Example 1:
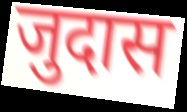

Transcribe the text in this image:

जुदास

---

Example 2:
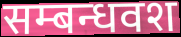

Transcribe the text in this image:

सम्बन्धवश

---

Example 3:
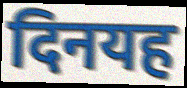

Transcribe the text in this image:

दिनयह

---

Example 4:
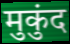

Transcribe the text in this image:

मुकुंद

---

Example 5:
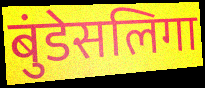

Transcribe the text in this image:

बुंडेसलिगा